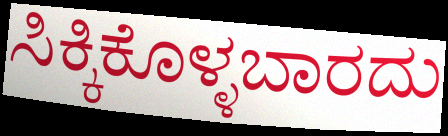
ಸಿಕ್ಕಿಕೊಳ್ಳಬಾರದು